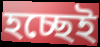
হচ্ছেই